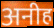
अनीह